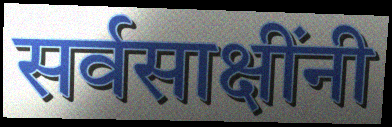
सर्वसाक्षींनी